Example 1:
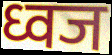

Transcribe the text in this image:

ध्वज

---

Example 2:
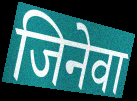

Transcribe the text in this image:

जिनेवा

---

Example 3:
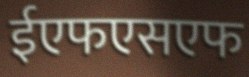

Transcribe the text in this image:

ईएफएसएफ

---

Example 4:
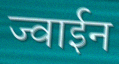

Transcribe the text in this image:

ज्वाईन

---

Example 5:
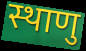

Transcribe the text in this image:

स्थाणु